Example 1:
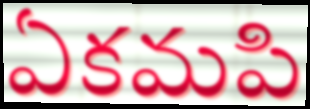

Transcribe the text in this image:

ఏకమపి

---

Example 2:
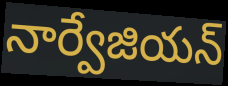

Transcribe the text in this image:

నార్వేజియన్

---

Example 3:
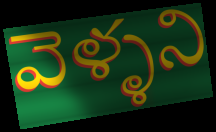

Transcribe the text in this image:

వెళ్ళని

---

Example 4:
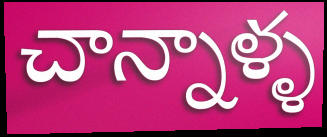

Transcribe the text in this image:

చాన్నాళ్ళ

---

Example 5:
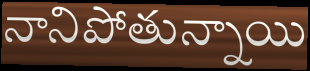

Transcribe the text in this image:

నానిపోతున్నాయి